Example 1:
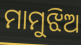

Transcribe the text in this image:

ମାମୁଝିଅ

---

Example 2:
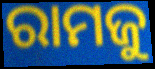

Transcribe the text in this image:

ରାମଜୁ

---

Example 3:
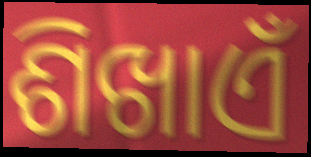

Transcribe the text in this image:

ଶିଖାଏଁ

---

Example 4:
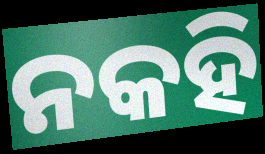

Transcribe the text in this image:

ନକହି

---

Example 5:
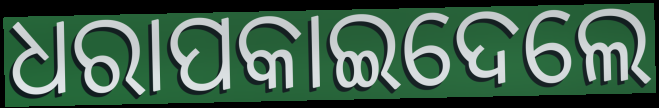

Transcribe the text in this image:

ଧରାପକାଇଦେଲେ